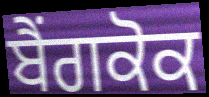
ਬੈਂਗਕੋਕ